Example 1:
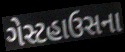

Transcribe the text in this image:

ગેસ્ટહાઉસના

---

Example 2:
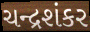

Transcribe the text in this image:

ચન્દ્રશંકર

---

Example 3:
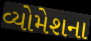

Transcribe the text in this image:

વ્યોમેશના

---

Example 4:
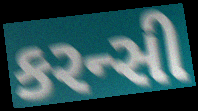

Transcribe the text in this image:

કરન્સી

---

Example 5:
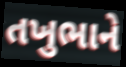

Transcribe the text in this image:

તખુભાને